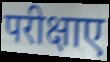
परीक्षाए